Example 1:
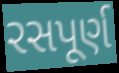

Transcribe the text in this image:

રસપૂર્ણ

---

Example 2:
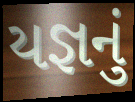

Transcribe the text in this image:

યજ્ઞનું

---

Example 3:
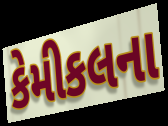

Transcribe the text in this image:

કેમીકલના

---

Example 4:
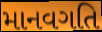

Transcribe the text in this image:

માનવગતિ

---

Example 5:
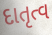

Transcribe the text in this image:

દાતૃત્વ